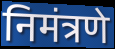
निमंत्रणे